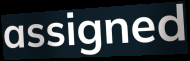
assigned